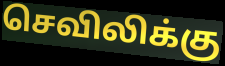
செவிலிக்கு